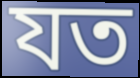
যত